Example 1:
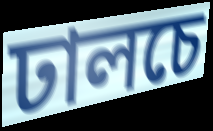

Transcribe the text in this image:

ঢালচে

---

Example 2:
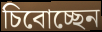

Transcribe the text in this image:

চিবোচ্ছেন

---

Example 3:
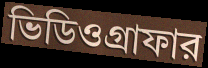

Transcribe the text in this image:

ভিডিওগ্রাফার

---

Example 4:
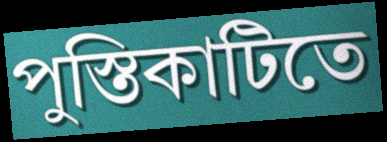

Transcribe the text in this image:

পুস্তিকাটিতে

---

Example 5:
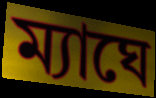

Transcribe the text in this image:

ম্যাঘে